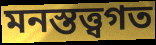
মনস্তত্ত্বগত